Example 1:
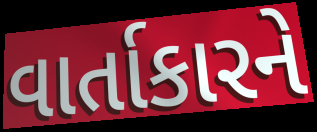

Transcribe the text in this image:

વાર્તાકારને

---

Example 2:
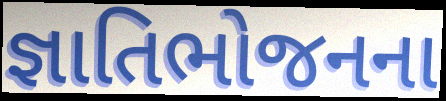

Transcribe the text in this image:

જ્ઞાતિભોજનના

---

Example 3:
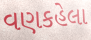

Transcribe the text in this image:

વણકહેલા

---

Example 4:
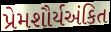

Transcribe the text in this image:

પ્રેમશૌર્યઅંકિત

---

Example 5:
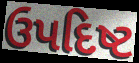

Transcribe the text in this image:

ઉપદિષ્ટ